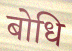
बोधि